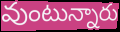
వుంటున్నారు